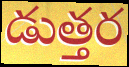
డుత్తర